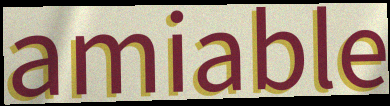
amiable